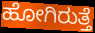
ಹೋಗಿರುತ್ತೆ